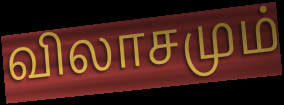
விலாசமும்